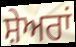
ਸ਼ੇਅਰਾਂ